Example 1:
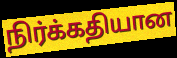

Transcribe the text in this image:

நிர்க்கதியான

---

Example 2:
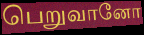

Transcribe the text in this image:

பெறுவானோ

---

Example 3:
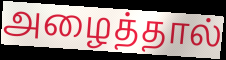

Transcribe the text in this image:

அழைத்தால்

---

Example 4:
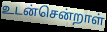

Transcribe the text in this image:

உடன்சென்றாள்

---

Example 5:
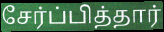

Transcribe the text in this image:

சேர்ப்பித்தார்